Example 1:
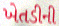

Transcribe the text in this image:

ખેતડીની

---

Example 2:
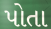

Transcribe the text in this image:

પોતા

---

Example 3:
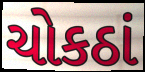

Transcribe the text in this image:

ચોકઠાં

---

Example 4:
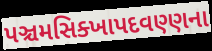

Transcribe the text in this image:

પઞ્ચમસિક્ખાપદવણ્ણના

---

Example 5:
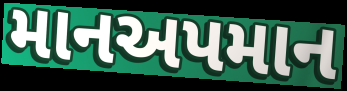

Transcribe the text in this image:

માનઅપમાન